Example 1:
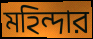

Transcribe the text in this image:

মহিন্দার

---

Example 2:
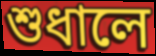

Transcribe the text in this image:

শুধালে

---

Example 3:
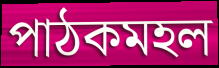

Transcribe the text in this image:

পাঠকমহল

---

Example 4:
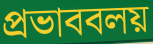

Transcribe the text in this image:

প্রভাববলয়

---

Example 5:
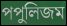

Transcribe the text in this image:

পপুলিজম